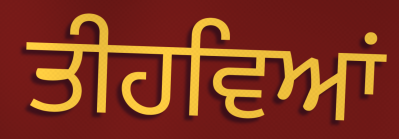
ਤੀਹਵਿਆਂ